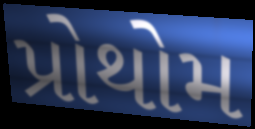
પ્રોથોમ